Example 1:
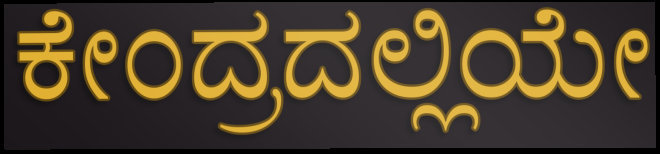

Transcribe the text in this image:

ಕೇಂದ್ರದಲ್ಲಿಯೇ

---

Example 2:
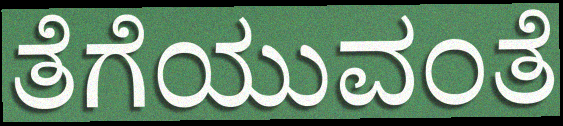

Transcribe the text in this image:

ತೆಗೆಯುವಂತೆ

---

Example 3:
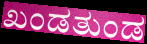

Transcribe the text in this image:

ಖಂಡತುಂಡ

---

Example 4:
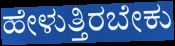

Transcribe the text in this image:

ಹೇಳುತ್ತಿರಬೇಕು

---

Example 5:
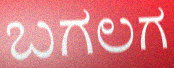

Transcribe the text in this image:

ಬಗಲಗ